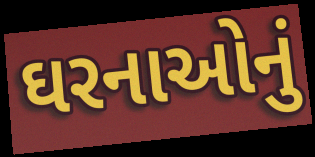
ઘરનાઓનું